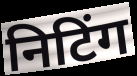
निटिंग